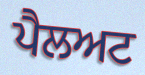
ਪੈਲਅਟ